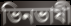
ভিনভাষী